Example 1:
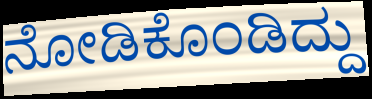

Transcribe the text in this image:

ನೋಡಿಕೊಂಡಿದ್ದು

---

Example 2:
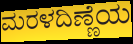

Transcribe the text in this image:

ಮರಳದಿಣ್ಣೆಯ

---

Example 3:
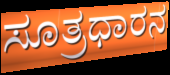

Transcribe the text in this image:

ಸೂತ್ರಧಾರನ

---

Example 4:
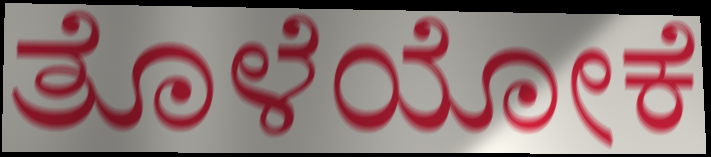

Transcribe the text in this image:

ತೊಳೆಯೋಕೆ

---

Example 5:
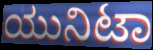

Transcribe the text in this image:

ಯುನಿಟಾ